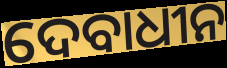
ଦେବାଧୀନ